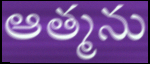
ఆత్మను